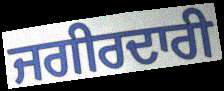
ਜਗੀਰਦਾਰੀ